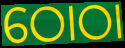
ଠୋଠା